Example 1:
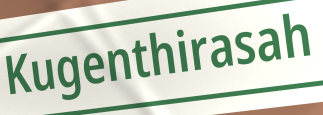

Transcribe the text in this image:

Kugenthirasah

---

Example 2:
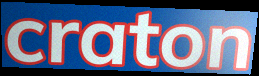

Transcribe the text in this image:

craton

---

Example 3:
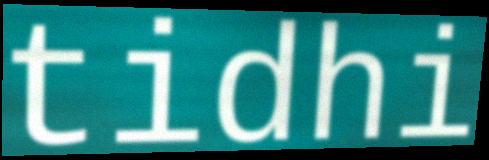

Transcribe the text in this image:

tidhi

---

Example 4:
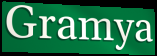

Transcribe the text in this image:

Gramya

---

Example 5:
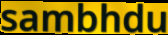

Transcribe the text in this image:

sambhdu